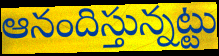
ఆనందిస్తున్నట్టు